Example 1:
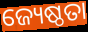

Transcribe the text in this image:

ଜ୍ୟେଷ୍ଠତା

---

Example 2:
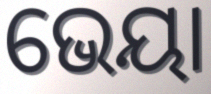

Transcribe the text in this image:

ଭେୟା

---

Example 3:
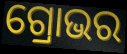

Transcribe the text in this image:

ଗ୍ରୋଭର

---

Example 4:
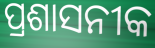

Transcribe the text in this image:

ପ୍ରଶାସନୀକ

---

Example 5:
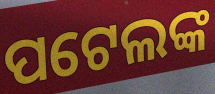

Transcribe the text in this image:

ପଟେଲଙ୍କ